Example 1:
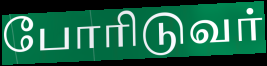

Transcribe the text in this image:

போரிடுவர்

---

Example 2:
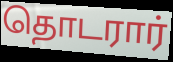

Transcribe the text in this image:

தொடரார்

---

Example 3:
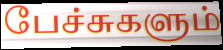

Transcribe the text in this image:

பேச்சுகளும்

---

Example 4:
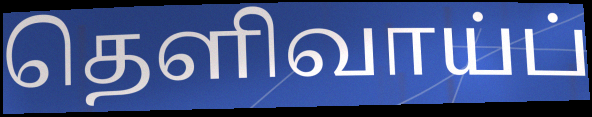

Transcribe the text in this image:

தெளிவாய்ப்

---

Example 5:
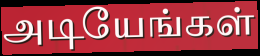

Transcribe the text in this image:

அடியேங்கள்